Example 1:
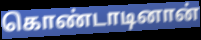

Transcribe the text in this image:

கொண்டாடினான்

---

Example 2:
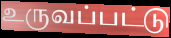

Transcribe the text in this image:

உருவப்பட்டு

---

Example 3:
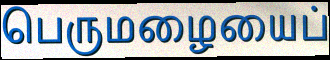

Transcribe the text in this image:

பெருமழையைப்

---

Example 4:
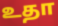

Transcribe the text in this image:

உதா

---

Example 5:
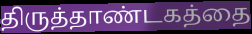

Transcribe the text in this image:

திருத்தாண்டகத்தை